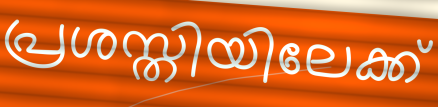
പ്രശസ്തിയിലേക്ക്